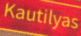
Kautilyas